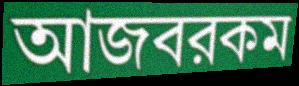
আজবরকম